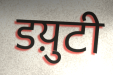
डय़ुटी